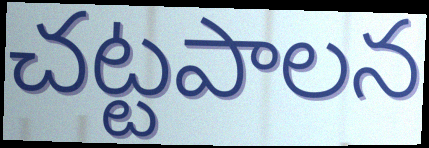
చట్టపాలన